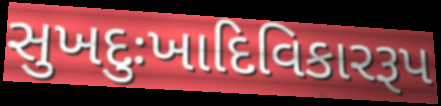
સુખદુઃખાદિવિકારરૂપ